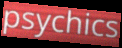
psychics